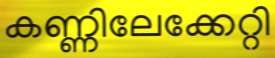
കണ്ണിലേക്കേറ്റി